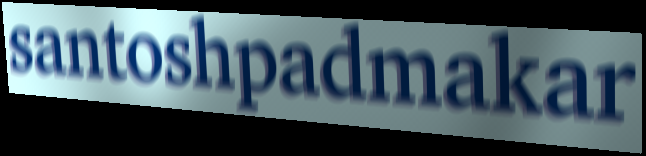
santoshpadmakar